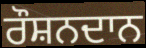
ਰੌਸ਼ਨਦਾਨ